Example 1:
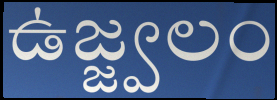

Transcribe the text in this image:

ఉజ్జ్వలం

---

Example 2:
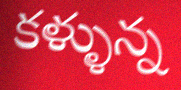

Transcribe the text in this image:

కళ్ళున్న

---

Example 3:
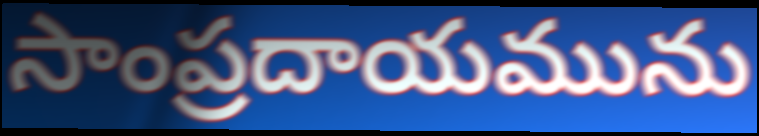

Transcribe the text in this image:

సాంప్రదాయమును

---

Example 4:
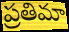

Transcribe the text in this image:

ప్రతిమా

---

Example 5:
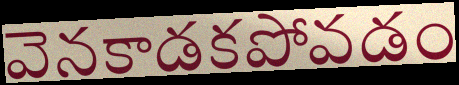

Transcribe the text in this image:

వెనకాడకపోవడం